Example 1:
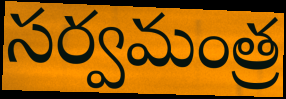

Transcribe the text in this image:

సర్వమంత్ర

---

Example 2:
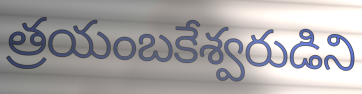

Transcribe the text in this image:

త్రయంబకేశ్వరుడిని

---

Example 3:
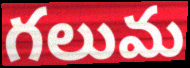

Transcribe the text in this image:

గలుమ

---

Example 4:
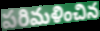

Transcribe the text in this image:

పరిమళించిన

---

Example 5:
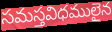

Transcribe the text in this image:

సమస్తవిధములైన